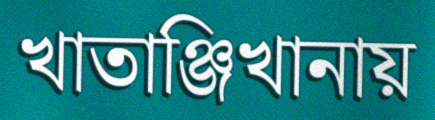
খাতাঞ্জিখানায়